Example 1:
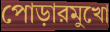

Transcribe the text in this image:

পোড়ারমুখো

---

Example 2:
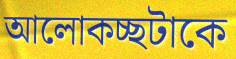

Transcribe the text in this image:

আলোকচ্ছটাকে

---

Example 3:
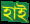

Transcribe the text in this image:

হাই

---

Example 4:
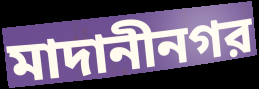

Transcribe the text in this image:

মাদানীনগর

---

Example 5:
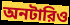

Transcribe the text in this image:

অনটারিও